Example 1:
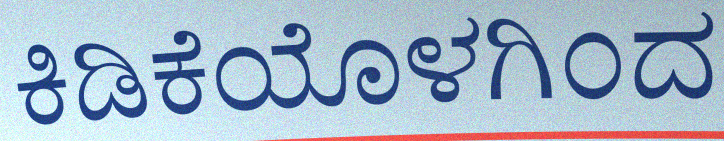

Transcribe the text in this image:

ಕಿಡಿಕೆಯೊಳಗಿಂದ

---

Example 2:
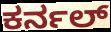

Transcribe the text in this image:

ಕರ್ನಲ್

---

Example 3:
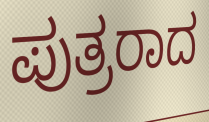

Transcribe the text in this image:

ಪುತ್ರರಾದ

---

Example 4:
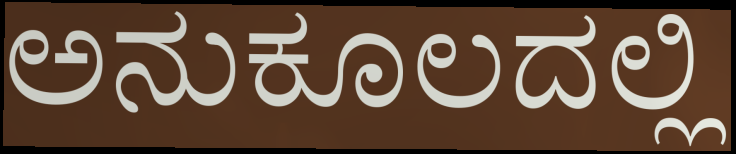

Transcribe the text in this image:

ಅನುಕೂಲದಲ್ಲಿ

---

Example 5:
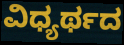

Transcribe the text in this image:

ವಿಧ್ಯರ್ಥದ